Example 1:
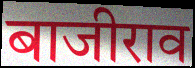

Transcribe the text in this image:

बाजीराव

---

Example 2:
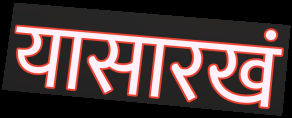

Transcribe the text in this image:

यासारखं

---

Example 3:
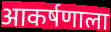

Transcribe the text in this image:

आकर्षणाला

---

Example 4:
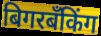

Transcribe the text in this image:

बिगरबँकिंग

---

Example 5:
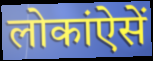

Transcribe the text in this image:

लोकांऐसें